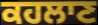
ਕਹਲਾਣ